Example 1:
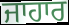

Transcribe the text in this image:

ਜਾਹਾਰ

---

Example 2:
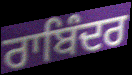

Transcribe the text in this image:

ਰਾਬਿੰਦਰ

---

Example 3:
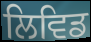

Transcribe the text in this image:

ਲਿਵਿਡ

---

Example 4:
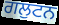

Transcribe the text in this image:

ਗਲੁਟਨ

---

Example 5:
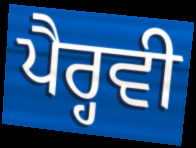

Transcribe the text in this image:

ਪੈਰ੍ਹਵੀ